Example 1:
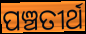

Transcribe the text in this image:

ପଞ୍ଚତୀର୍ଥ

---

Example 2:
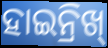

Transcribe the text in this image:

ହାଇନ୍ରିଖ୍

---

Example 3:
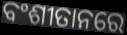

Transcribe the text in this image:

ବଂଶୀତାନରେ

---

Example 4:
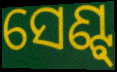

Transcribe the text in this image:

ସେଣ୍ଟ୍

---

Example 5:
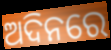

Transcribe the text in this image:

ଅଦିନରେ